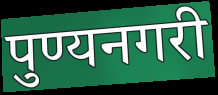
पुण्यनगरी